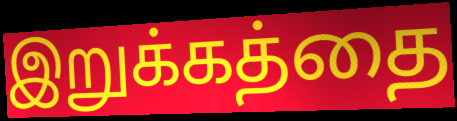
இறுக்கத்தை